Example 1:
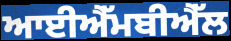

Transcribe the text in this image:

ਆਈਐੱਮਬੀਐੱਲ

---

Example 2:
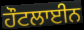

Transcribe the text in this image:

ਹੌਟਲਾਈਨ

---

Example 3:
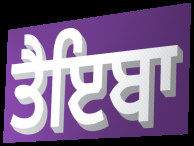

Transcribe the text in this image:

ਤੈਇਬਾ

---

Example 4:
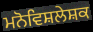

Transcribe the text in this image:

ਮਨੋਵਿਸ਼ਲੇਸ਼ਕ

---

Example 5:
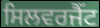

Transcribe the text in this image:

ਸਿਲਵਰਜੈੱਟ